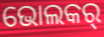
ଭୋଲକର୍